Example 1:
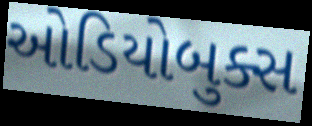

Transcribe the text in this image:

ઓડિયોબુક્સ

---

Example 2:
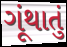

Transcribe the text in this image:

ગૂંથાતું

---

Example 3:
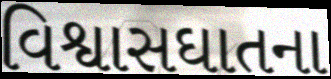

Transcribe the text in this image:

વિશ્વાસઘાતના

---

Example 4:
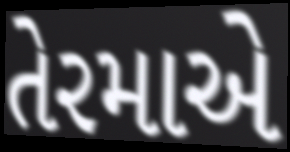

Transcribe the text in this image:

તેરમાએ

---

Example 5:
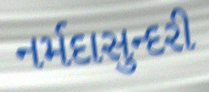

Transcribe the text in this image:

નર્મદાસુન્દરી